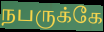
நபருக்கே